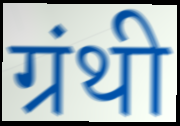
ग्रंथी